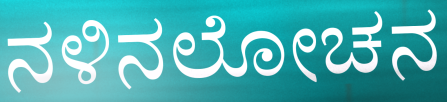
ನಳಿನಲೋಚನ